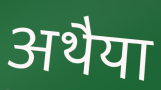
अथैया